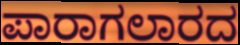
ಪಾರಾಗಲಾರದ